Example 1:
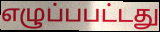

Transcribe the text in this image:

எழுப்பபட்டது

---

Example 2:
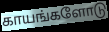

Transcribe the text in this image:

காயங்களோடு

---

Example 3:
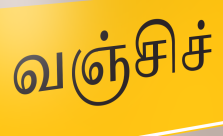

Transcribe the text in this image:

வஞ்சிச்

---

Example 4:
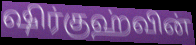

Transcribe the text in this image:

ஷிர்குஹ்வின்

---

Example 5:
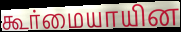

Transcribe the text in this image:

கூர்மையாயின